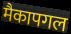
मैकापगल